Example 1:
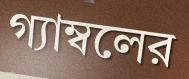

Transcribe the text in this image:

গ্যাম্বলের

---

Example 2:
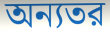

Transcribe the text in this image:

অন্যতর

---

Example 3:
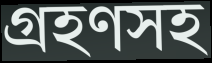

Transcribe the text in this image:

গ্রহণসহ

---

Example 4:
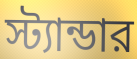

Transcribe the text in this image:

স্ট্যান্ডার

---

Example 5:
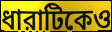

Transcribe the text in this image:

ধারাটিকেও